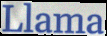
Llama